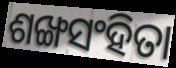
ଶଙ୍ଖସଂହିତା